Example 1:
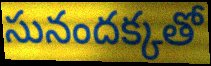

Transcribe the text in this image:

సునందక్కతో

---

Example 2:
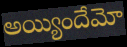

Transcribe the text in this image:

అయ్యిందేమో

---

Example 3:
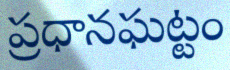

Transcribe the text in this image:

ప్రధానఘట్టం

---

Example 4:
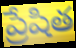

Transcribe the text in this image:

ప్రేషిత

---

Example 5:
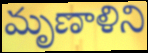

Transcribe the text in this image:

మృణాళిని